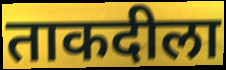
ताकदीला